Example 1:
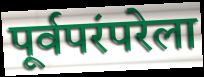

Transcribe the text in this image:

पूर्वपरंपरेला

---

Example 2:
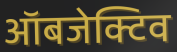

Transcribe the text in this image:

ऑबजेक्टिव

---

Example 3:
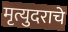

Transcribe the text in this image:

मृत्युदराचे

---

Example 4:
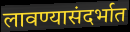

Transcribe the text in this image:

लावण्यासंदर्भात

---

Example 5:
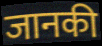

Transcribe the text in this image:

जानकी